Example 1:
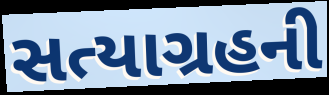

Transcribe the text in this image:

સત્યાગ્રહની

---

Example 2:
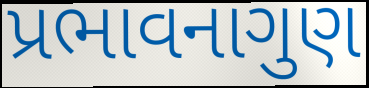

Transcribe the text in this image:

પ્રભાવનાગુણ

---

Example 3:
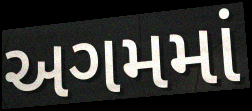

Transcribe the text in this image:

અગમમાં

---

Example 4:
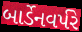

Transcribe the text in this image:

બાર્ડેનવર્પરે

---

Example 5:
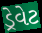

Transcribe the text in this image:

ડ્રેવેટ